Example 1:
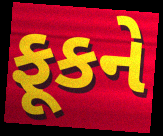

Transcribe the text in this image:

ફૂકને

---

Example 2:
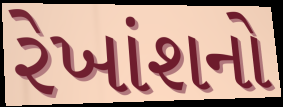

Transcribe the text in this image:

રેખાંશનો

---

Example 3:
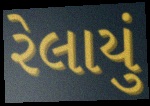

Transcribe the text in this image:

રેલાયું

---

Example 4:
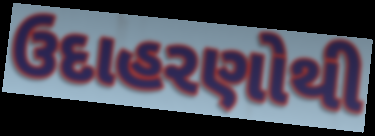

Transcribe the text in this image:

ઉદાહરણોથી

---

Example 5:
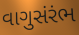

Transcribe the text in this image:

વાગુસંરંભ